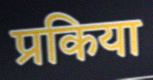
प्रकिया